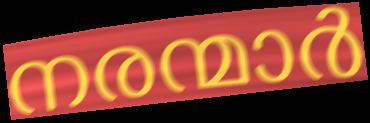
നരന്മാർ